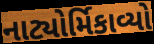
નાટ્યોર્મિકાવ્યો